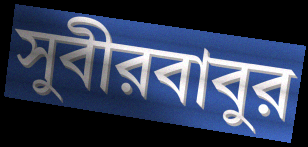
সুবীরবাবুর